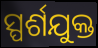
ସ୍ପର୍ଶଯୁକ୍ତ